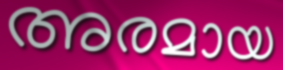
അരമായ